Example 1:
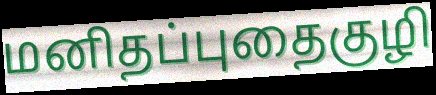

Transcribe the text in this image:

மனிதப்புதைகுழி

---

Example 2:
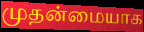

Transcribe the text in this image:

முதன்மையாக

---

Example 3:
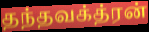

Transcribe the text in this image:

தந்தவக்த்ரன்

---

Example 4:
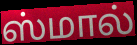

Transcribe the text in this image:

ஸ்மால்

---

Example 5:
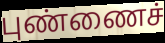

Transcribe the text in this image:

புண்ணைச்